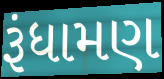
રૂંધામણ